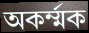
অকৰ্ম্মক